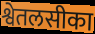
श्वेतलसीका